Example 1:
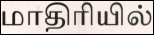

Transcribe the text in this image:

மாதிரியில்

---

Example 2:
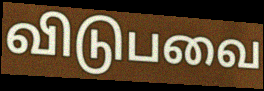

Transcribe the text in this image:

விடுபவை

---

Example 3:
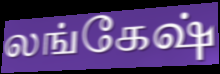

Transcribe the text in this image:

லங்கேஷ்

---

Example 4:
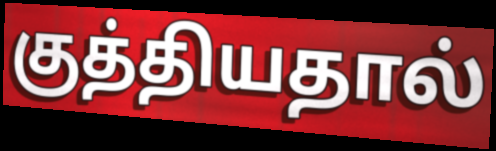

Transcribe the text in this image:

குத்தியதால்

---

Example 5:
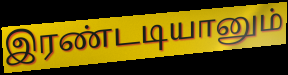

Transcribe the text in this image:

இரண்டடியானும்